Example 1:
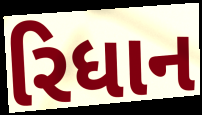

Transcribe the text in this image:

રિધાન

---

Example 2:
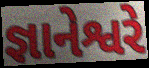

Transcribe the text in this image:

જ્ઞાનેશ્વરે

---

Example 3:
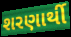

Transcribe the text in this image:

શરણાર્થી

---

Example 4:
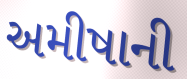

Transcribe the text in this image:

અમીષાની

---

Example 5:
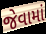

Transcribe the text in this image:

જેવામાં